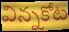
విన్నకోట